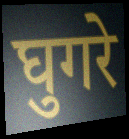
घुगरे